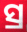
ସ୍ର